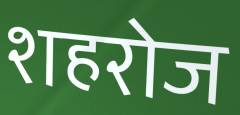
शहरोज